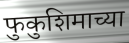
फुकुशिमाच्या